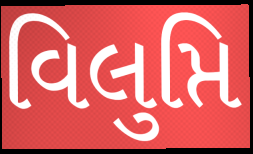
વિલુપ્તિ